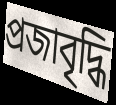
প্রজাবৃদ্ধি